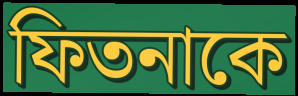
ফিতনাকে